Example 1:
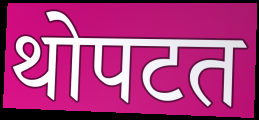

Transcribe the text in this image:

थोपटत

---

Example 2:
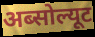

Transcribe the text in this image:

अब्सोल्यूट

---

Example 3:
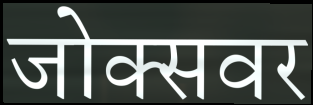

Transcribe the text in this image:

जोक्सवर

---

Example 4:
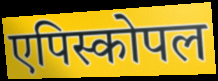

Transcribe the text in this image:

एपिस्कोपल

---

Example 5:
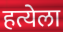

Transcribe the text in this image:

हत्येला